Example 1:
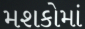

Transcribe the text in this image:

મશકોમાં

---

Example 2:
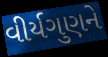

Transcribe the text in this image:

વીર્યગુણને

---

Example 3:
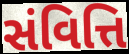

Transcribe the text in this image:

સંવિત્તિ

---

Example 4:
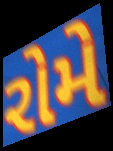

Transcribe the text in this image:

રોમે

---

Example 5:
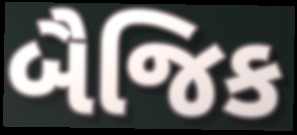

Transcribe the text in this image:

બૈજિક